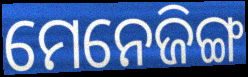
ମେନେଜିଙ୍ଗ